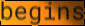
begins